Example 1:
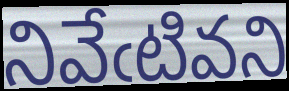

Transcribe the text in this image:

నివేఁటివని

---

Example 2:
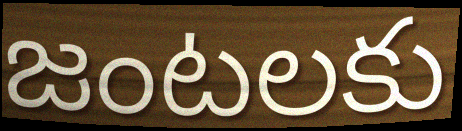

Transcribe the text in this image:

జంటలకు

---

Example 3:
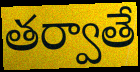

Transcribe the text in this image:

తర్వాతే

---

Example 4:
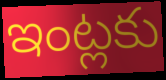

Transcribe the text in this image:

ఇంట్లకు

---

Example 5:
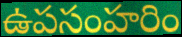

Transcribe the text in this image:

ఉపసంహరిం